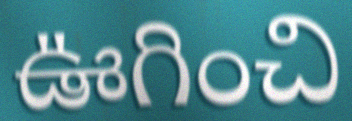
ఊగించి